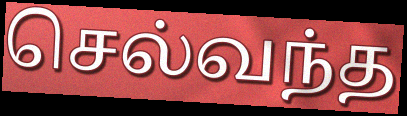
செல்வந்த